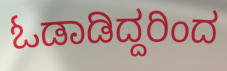
ಓಡಾಡಿದ್ದರಿಂದ